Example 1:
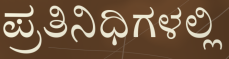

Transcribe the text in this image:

ಪ್ರತಿನಿಧಿಗಳಲ್ಲಿ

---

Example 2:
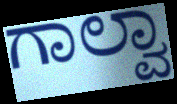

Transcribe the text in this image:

ಗಾಲ್ವಾ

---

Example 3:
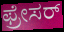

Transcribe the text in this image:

ಫ್ರೇಸರ್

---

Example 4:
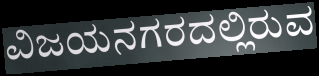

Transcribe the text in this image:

ವಿಜಯನಗರದಲ್ಲಿರುವ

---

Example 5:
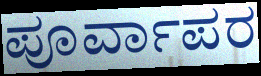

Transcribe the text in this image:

ಪೂರ್ವಾಪರ